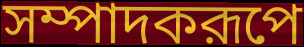
সম্পাদকরূপে